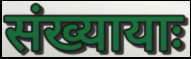
संख्यायाः